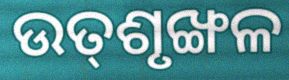
ଉତ୍‌ଶୃଙ୍ଖଳ